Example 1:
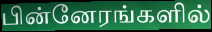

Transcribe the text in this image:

பின்னேரங்களில்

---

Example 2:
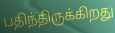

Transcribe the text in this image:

பதிந்திருக்கிறது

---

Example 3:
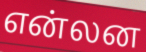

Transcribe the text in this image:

என்லன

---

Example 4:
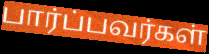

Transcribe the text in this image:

பார்ப்பவர்கள்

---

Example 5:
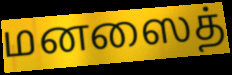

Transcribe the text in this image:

மனஸைத்